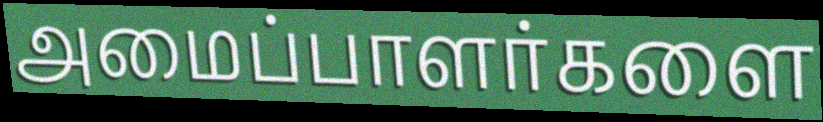
அமைப்பாளர்களை